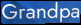
Grandpa